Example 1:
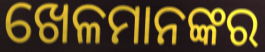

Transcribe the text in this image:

ଖେଳମାନଙ୍କର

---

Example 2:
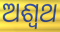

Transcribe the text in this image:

ଅଶ୍ବଥ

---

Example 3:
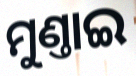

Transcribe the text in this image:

ମୁଣ୍ତାଇ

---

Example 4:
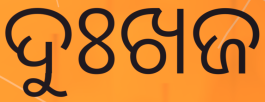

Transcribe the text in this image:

ଦୁଃଖଜ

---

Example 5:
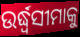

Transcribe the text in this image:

ଉର୍ଦ୍ଧ୍ୱସୀମାକୁ